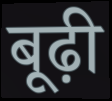
बूढ़ी